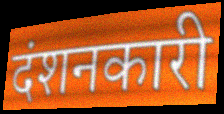
दंशनकारी